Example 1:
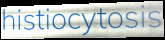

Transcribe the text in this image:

histiocytosis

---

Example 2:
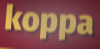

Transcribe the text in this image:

koppa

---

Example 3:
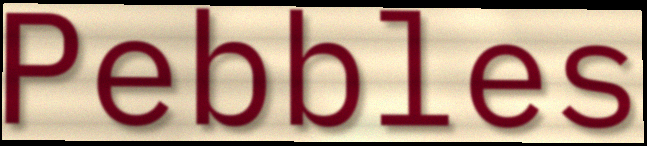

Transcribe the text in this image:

Pebbles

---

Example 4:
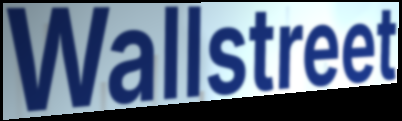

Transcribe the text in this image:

Wallstreet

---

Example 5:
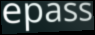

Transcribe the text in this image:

epass